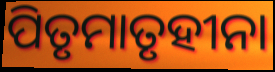
ପିତୃମାତୃହୀନା